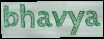
bhavya